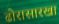
ढोरासारखा